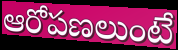
ఆరోపణలుంటే